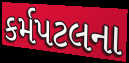
કર્મપટલના